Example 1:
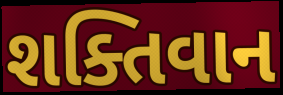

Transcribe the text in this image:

શક્તિવાન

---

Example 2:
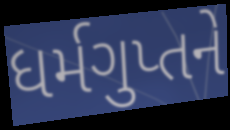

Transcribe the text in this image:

ધર્મગુપ્તને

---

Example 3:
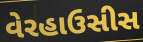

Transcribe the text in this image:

વેરહાઉસીસ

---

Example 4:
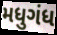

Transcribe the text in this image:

મધુગંધ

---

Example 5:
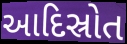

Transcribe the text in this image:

આદિસ્રોત